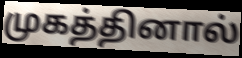
முகத்தினால்